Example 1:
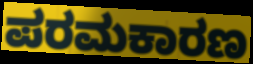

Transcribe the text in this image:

ಪರಮಕಾರಣ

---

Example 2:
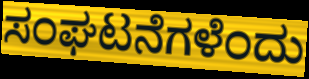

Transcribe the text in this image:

ಸಂಘಟನೆಗಳೆಂದು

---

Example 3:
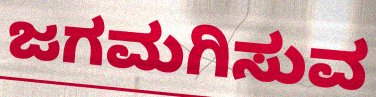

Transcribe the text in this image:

ಜಗಮಗಿಸುವ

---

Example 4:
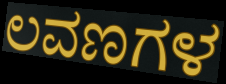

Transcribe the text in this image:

ಲವಣಗಳ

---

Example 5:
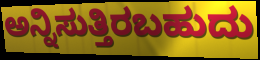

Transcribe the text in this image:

ಅನ್ನಿಸುತ್ತಿರಬಹುದು